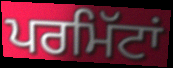
ਪਰਮਿੱਟਾਂ